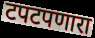
टपटपणारा